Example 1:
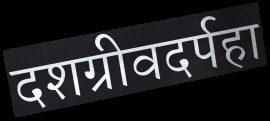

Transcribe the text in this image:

दशग्रीवदर्पहा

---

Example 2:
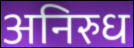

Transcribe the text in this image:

अनिरुध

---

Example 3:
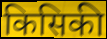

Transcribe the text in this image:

किसिकी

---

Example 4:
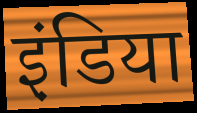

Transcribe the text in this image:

इ़ंडिया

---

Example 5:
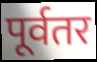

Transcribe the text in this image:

पूर्वतर